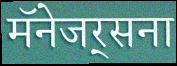
मॅनेजर्सना